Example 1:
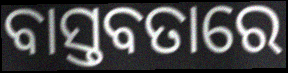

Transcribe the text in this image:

ବାସ୍ତବତାରେ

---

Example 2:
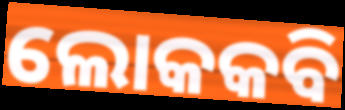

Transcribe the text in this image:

ଲୋକକବି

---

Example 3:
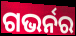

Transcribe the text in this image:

ଗଭର୍ନର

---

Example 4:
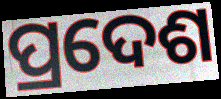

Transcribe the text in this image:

ପ୍ରଦେଶ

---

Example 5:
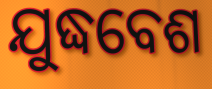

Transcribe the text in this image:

ଯୁଦ୍ଧବେଶ